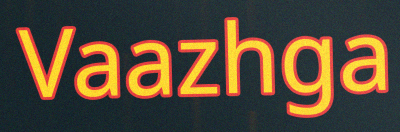
Vaazhga